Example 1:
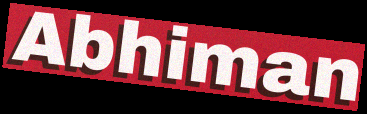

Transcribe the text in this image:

Abhiman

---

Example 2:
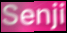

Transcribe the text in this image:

Senji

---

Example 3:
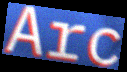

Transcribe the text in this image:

Arc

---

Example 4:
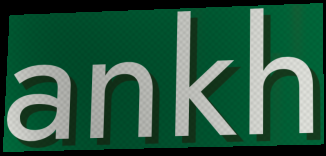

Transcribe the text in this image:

ankh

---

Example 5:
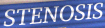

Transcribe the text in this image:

STENOSIS